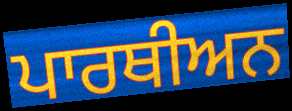
ਪਾਰਥੀਅਨ